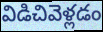
విడిచివెళ్లడం